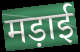
मड़ाई